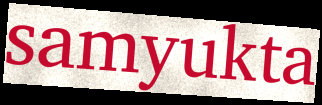
samyukta